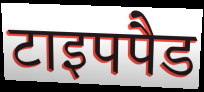
टाइपपैड